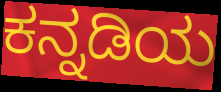
ಕನ್ನಡಿಯ